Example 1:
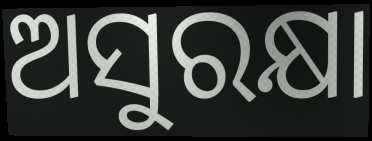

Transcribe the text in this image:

ଅସୁରକ୍ଷା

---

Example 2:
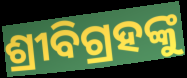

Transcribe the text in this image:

ଶ୍ରୀବିଗ୍ରହଙ୍କୁ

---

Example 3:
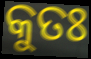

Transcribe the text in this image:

କୁତଃ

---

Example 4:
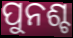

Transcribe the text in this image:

ପୁନଶ୍ଚ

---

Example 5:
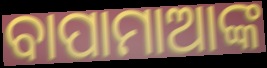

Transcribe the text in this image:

ବାପାମାଆଙ୍କ